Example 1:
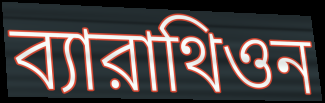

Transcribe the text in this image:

ব্যারাথিওন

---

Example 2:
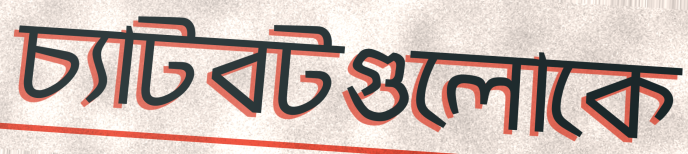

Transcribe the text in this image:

চ্যাটবটগুলোকে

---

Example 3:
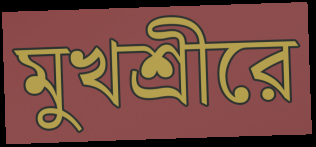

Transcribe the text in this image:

মুখশ্রীরে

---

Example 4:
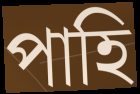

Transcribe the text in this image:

পাহি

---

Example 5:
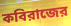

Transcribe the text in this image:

কবিরাজের